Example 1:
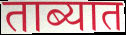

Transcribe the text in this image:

ताब्यात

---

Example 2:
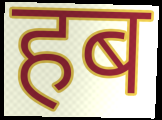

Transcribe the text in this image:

हब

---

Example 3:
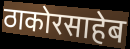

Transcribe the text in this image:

ठाकोरसाहेब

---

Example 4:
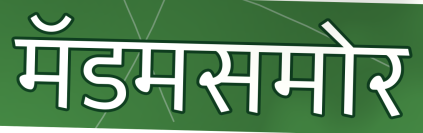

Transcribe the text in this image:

मॅडमसमोर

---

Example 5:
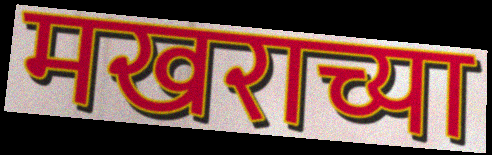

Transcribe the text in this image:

मखराच्या